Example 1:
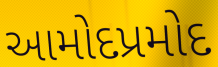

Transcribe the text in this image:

આમોદપ્રમોદ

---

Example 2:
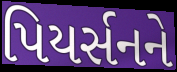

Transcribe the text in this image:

પિયર્સનને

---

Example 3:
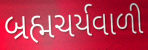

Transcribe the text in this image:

બ્રહ્મચર્યવાળી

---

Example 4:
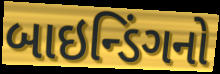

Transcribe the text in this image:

બાઇન્ડિંગનો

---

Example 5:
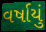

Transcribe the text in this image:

વર્ષાયું